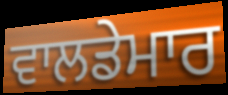
ਵਾਲਡੇਮਾਰ